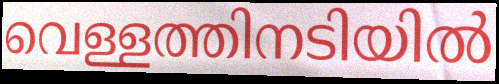
വെള്ളത്തിനടിയിൽ